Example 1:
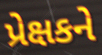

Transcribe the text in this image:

પ્રેક્ષકને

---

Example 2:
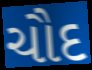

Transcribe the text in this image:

ચૌદ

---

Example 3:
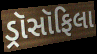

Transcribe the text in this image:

ડ્રૉસૉફિલા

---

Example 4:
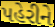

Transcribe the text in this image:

પહેરીને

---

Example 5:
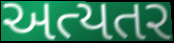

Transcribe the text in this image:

અત્યતર